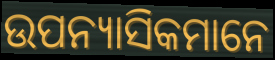
ଉପନ୍ୟାସିକମାନେ